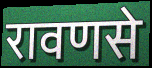
रावणसे